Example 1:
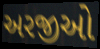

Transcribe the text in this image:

અરજીઓ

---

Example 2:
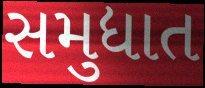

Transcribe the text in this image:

સમુદ્યાત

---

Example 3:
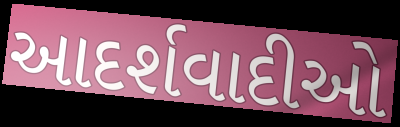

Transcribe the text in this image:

આદર્શવાદીઓ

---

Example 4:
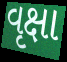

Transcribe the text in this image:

વૃક્ષા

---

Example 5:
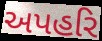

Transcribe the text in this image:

અપહરિ